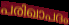
പരിഖാപദം